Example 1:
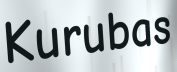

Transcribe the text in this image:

Kurubas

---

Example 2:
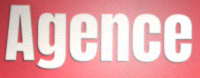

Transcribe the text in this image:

Agence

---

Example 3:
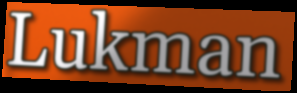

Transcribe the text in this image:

Lukman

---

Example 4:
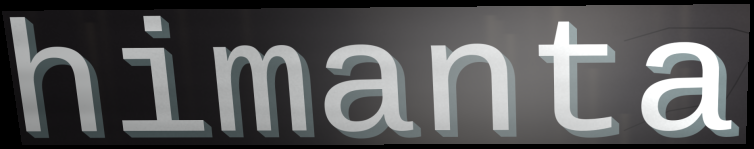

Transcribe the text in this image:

himanta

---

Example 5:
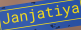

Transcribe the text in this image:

Janjatiya